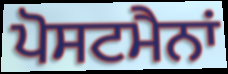
ਪੋਸਟਮੈਨਾਂ